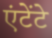
एंटेंटे